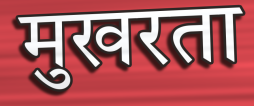
मुखरता